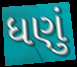
ધણું